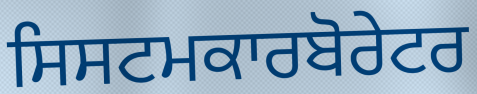
ਸਿਸਟਮਕਾਰਬੋਰੇਟਰ